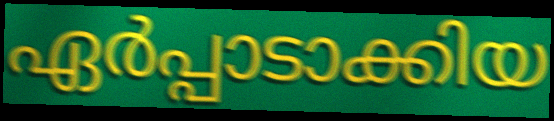
ഏർപ്പാടാക്കിയ